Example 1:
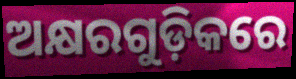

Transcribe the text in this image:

ଅକ୍ଷରଗୁଡ଼ିକରେ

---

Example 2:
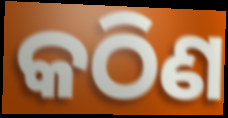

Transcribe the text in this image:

କଠିଣ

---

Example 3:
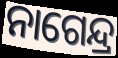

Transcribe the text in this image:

ନାଗେନ୍ଦ୍ର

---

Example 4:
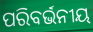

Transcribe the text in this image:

ପରିବର୍ଭନୀୟ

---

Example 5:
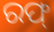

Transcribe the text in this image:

ରଫ୍